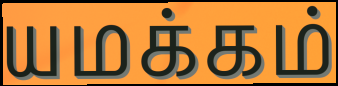
யமக்கம்